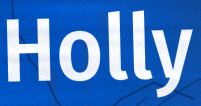
Holly